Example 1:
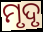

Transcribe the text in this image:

ମୃଦୃ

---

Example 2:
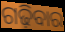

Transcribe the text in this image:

ଗଢ଼ିବାର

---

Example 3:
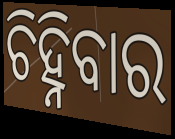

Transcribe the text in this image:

ଚିହ୍ନିବାର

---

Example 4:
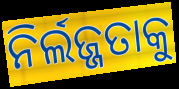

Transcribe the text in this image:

ନିର୍ଲଜ୍ଜତାକୁ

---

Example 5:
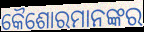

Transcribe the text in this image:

କୈଶୋରମାନଙ୍କର